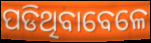
ପଡିଥିବାବେଳେ